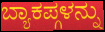
ಬ್ಯಾಕಪ್ಗಳನ್ನು